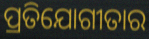
ପ୍ରତିଯୋଗୀତାର